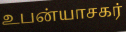
உபன்யாசகர்